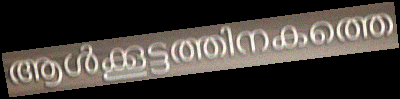
ആൾക്കൂട്ടത്തിനകത്തെ